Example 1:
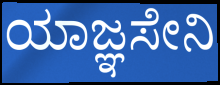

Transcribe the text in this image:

ಯಾಜ್ಞಸೇನಿ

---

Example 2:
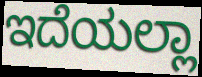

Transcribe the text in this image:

ಇದೆಯಲ್ಲಾ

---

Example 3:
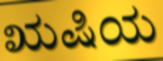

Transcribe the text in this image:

ಋಷಿಯ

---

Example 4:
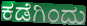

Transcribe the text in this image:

ಕಡೆಗಿಂದು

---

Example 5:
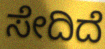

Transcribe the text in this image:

ಸೇದಿದೆ